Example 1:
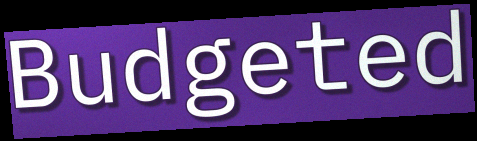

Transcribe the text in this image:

Budgeted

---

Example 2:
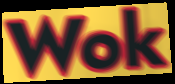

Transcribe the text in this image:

Wok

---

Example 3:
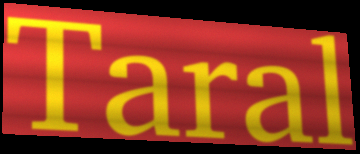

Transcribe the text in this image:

Taral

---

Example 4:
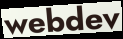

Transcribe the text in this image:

webdev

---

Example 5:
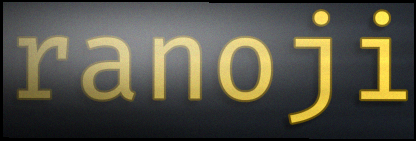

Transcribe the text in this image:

ranoji